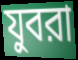
যুবরা